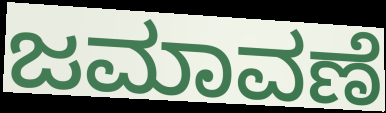
ಜಮಾವಣೆ